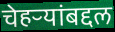
चेहऱ्यांबद्दल